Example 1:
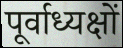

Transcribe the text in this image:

पूर्वाध्यक्षों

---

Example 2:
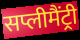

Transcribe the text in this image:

सप्लीमैंट्री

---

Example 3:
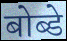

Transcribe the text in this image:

बोब्डे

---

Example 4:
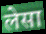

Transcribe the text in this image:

लेसा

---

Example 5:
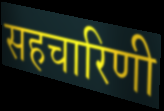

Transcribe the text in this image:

सहचारिणी